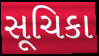
સૂચિકા